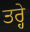
ਤਰ੍ਹੇ